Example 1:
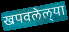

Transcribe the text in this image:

खपवलेल्या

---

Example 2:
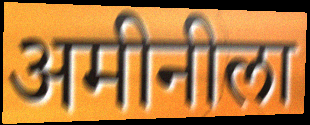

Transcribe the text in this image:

अमीनीला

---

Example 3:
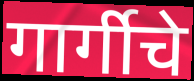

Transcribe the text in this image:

गार्गीचे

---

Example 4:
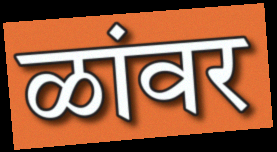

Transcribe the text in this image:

ळांवर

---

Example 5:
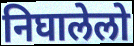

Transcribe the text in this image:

निघालेलो